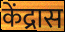
केंद्रास